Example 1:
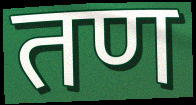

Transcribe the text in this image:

तण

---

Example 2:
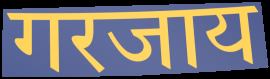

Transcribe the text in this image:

गरजाय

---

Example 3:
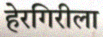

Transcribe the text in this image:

हेरगिरीला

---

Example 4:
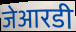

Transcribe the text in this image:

जेआरडी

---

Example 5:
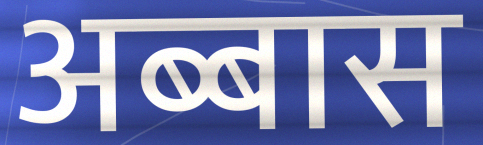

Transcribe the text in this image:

अब्बास